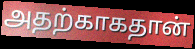
அதற்காகதான்